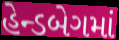
હેન્ડબેગમાં